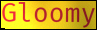
Gloomy